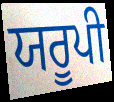
ਯਰੂਪੀ